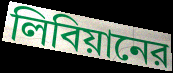
লিবিয়ানের